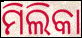
ମିଲିକା